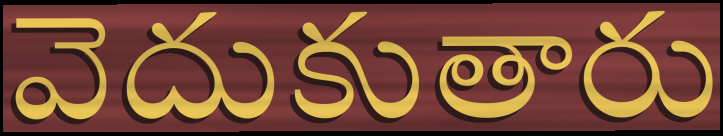
వెదుకుతారు